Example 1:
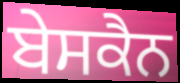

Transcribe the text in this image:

ਬੇਸਕੈਨ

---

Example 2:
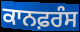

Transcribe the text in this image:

ਕਾਨਫ਼ਰੰਸ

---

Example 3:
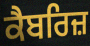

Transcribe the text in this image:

ਕੈਬਰਿਜ਼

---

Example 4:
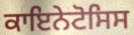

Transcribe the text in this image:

ਕਾਇਨੇਟੋਸਿਸ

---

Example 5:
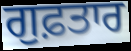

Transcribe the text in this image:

ਗੁਫ਼ਤਾਰ